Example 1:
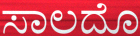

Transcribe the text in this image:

ಸಾಲದೊ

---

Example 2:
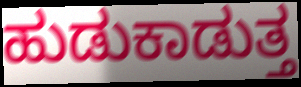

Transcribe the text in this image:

ಹುಡುಕಾಡುತ್ತ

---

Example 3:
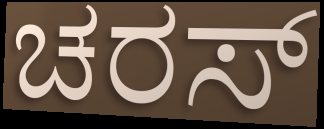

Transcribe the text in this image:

ಚರಸ್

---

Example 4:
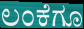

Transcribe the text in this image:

ಲಂಕೆಗೂ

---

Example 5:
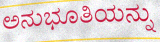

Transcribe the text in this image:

ಅನುಭೂತಿಯನ್ನು